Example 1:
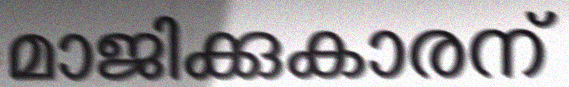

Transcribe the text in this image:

മാജിക്കുകാരന്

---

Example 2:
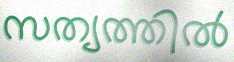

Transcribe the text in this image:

സത്യത്തിൽ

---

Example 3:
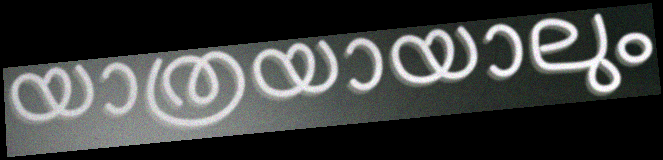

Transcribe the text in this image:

യാത്രയായാലും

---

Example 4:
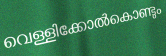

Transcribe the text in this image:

വെള്ളിക്കോൽകൊണ്ടും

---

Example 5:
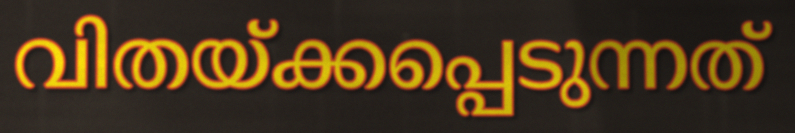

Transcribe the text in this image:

വിതയ്ക്കപ്പെടുന്നത്